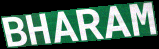
BHARAM